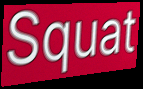
Squat